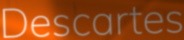
Descartes